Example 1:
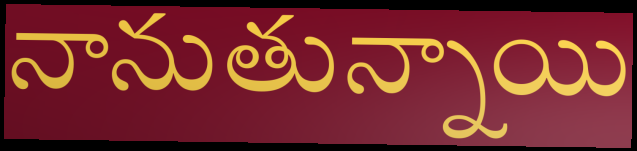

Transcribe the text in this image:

నానుతున్నాయి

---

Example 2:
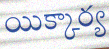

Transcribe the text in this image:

యిక్కార్య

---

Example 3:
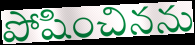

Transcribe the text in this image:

పోషించినను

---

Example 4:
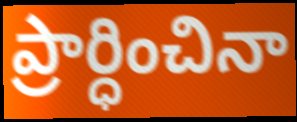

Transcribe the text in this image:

ప్రార్ధించినా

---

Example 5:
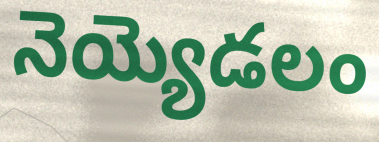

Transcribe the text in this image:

నెయ్యెడలం